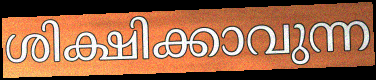
ശിക്ഷിക്കാവുന്ന